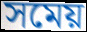
সমেয়